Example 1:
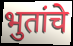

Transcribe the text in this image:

भुतांचे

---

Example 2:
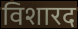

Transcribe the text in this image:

विशारद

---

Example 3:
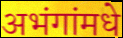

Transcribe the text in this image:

अभंगांमधे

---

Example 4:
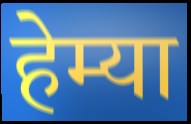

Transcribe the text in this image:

हेम्या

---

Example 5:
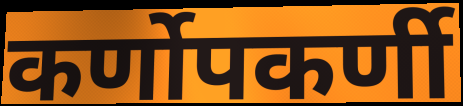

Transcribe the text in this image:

कर्णोपकर्णी